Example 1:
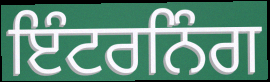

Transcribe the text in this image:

ਇੰਟਰਨਿੰਗ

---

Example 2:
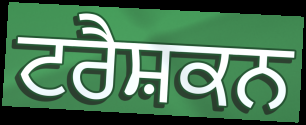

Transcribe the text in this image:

ਟਰੈਸ਼ਕਨ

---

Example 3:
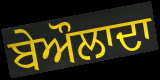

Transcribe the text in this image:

ਬੇਔਲਾਦਾ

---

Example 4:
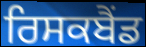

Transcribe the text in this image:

ਰਿਸਕਬੈਂਡ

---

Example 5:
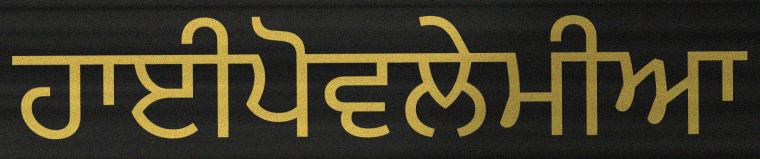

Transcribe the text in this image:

ਹਾਈਪੋਵਲੇਮੀਆ